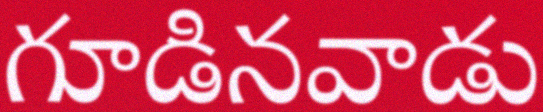
గూడినవాడు